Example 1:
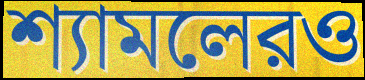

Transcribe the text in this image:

শ্যামলেরও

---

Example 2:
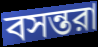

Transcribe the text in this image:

বসন্তরা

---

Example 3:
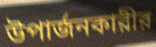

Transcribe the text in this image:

উপার্জনকারীর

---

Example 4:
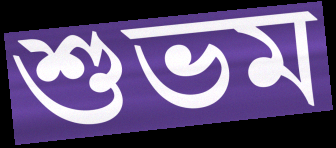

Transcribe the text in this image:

শুভম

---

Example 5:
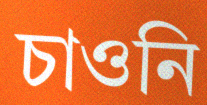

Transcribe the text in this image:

চাওনি